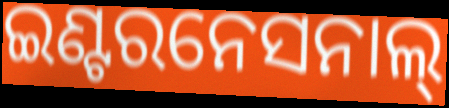
ଇଣ୍ଟରନେସନାଲ୍